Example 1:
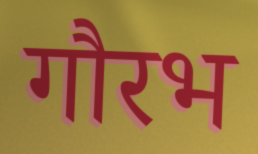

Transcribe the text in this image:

गौरभ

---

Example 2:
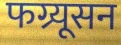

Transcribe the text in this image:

फग्र्यूसन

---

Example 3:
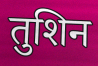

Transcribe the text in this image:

तुशिन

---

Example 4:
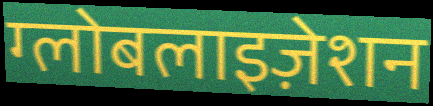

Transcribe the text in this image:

ग्लोबलाइज़ेशन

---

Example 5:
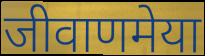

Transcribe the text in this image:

जीवाणमेया